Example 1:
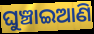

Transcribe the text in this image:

ଘୁଞ୍ଚାଇଆଣି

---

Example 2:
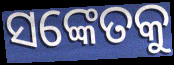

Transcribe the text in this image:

ସଙ୍କେତକୁ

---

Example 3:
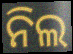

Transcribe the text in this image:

ନିଲ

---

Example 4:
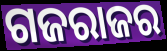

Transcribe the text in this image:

ଗଜରାଜର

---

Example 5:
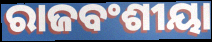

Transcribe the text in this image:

ରାଜବଂଶୀୟା